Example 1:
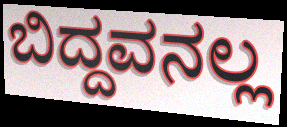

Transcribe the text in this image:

ಬಿದ್ದವನಲ್ಲ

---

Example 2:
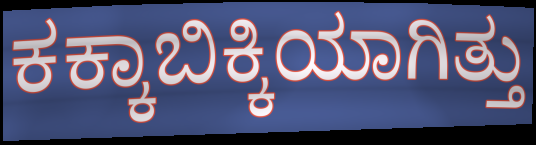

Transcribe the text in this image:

ಕಕ್ಕಾಬಿಕ್ಕಿಯಾಗಿತ್ತು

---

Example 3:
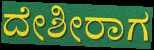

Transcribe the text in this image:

ದೇಶೀರಾಗ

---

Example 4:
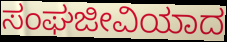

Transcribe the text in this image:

ಸಂಘಜೀವಿಯಾದ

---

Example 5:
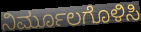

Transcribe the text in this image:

ನಿರ್ಮೂಲಗೊಳಿಸಿ